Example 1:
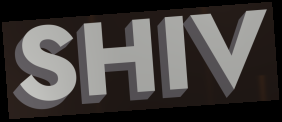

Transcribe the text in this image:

SHIV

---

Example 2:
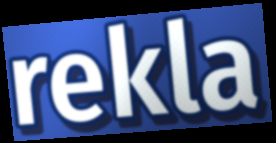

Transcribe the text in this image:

rekla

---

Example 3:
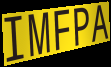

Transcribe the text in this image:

IMFPA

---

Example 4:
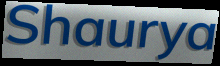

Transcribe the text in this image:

Shaurya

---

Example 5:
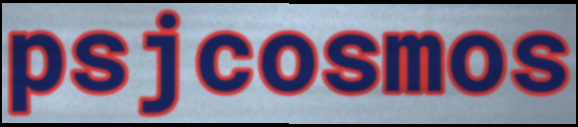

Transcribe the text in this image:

psjcosmos